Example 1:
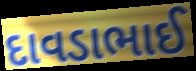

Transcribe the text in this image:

દાવડાભાઈ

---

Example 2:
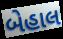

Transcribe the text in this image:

બેહાલ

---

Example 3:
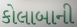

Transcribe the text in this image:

કોલાબાની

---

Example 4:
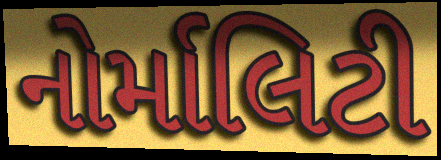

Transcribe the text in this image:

નોર્માલિટી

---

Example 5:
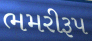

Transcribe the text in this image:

ભમરીરૂપ